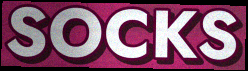
SOCKS